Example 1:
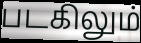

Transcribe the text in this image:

படகிலும்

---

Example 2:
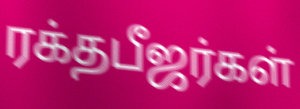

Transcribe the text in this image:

ரக்தபீஜர்கள்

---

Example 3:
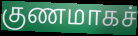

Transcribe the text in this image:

குணமாகச்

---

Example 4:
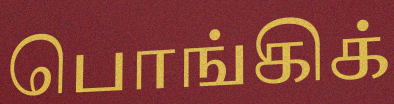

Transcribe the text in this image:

பொங்கிக்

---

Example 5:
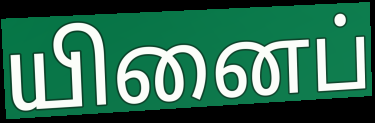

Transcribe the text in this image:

யினைப்